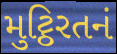
મુટ્ઠિરતનં